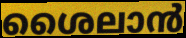
ശൈലാൻ